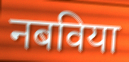
नबविया